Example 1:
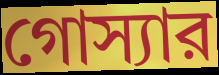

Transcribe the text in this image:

গোস্যার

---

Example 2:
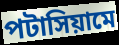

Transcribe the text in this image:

পটাসিয়ামে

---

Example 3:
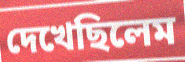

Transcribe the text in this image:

দেখেছিলেম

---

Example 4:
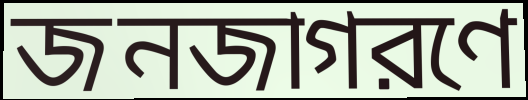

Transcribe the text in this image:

জনজাগরণে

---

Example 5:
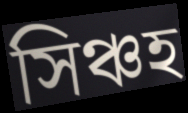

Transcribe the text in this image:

সিঞ্চহ